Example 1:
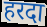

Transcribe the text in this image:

हरदा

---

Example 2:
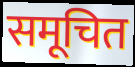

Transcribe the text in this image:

समूचित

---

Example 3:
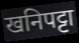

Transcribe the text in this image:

खनिपट्टा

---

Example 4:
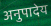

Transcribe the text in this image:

अनुपादेय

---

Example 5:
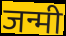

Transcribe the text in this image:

जन्मी